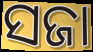
ସଜା